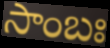
సాంబః